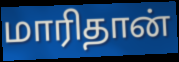
மாரிதான்